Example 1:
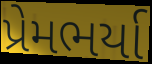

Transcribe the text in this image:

પ્રેમભર્યા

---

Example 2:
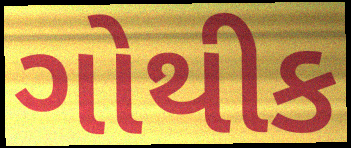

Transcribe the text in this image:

ગોથીક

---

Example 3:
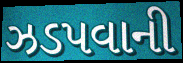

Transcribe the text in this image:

ઝડપવાની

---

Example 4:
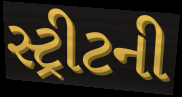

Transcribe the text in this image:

સ્ટ્રીટની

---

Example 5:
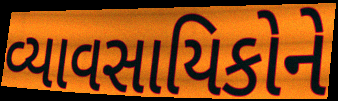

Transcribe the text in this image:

વ્યાવસાયિકોને